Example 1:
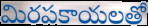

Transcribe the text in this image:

మిరపకాయలతో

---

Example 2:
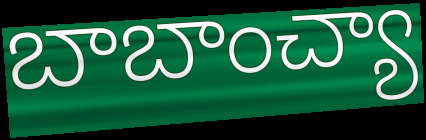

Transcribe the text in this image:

బాబాంచ్యా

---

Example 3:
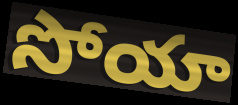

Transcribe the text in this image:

సోయా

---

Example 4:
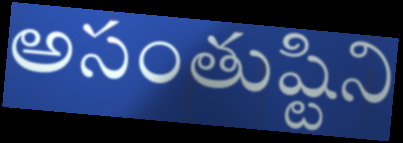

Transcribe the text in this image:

అసంతుష్టిని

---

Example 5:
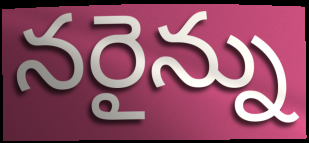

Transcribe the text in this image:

నరైన్ను